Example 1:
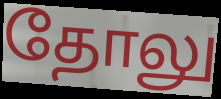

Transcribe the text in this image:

தோலு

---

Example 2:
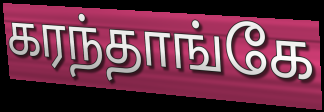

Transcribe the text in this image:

கரந்தாங்கே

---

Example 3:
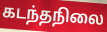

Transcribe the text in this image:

கடந்தநிலை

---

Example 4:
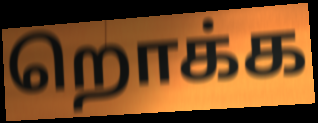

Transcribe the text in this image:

றொக்க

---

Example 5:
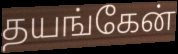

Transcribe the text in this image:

தயங்கேன்